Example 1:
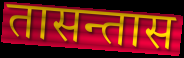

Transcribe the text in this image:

तासन्तास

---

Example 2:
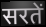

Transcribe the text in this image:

सरतें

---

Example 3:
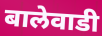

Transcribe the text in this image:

बालेवाडी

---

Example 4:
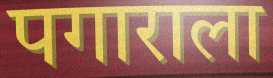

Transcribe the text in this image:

पगाराला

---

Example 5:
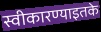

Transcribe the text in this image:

स्वीकारण्याइतके